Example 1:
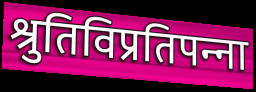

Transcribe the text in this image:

श्रुतिविप्रतिपन्ना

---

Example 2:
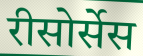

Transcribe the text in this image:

रीसोर्सेस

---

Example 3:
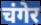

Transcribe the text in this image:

चंगेर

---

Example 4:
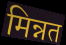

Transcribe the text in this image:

मिन्नत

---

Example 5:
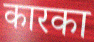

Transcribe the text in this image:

कारका